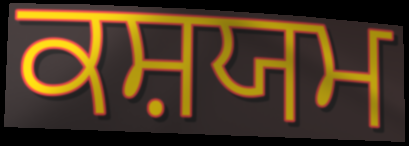
ਕਸ਼ਯਮ